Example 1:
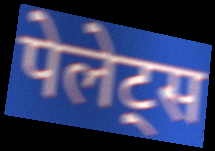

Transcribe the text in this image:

पेलेट्स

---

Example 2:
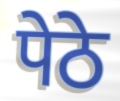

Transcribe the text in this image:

पेठे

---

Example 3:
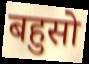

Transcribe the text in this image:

बहुसो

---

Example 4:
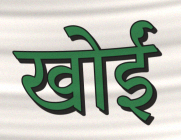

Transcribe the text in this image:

खोईं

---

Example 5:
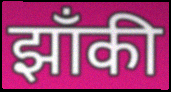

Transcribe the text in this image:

झाँकी